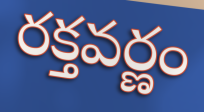
రక్తవర్ణం